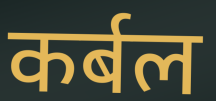
कर्बल